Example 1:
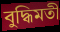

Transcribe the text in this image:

বুদ্ধিমতী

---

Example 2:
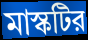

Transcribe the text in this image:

মাস্কটির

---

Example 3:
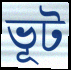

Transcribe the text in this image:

ভূট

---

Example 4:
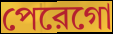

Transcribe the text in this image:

পেরেগো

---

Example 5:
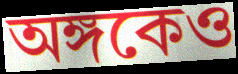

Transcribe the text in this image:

অঙ্গকেও